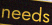
needs